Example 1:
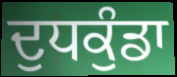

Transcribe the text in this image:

ਦੁਧਕੁੰਡਾ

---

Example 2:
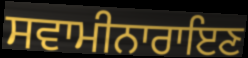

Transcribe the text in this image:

ਸਵਾਮੀਨਾਰਾਇਣ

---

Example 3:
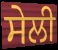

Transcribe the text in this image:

ਸੇਲੀ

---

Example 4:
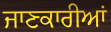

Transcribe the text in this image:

ਜਾਣਕਾਰੀਆਂ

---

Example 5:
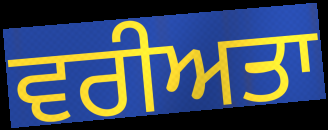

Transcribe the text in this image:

ਵਰੀਅਤਾ